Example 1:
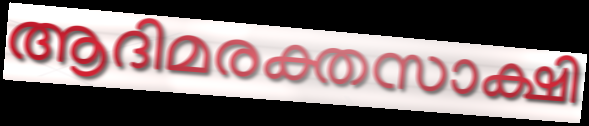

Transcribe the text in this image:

ആദിമരക്തസാക്ഷി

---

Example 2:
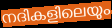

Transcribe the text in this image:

നദികളിലെയും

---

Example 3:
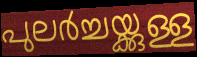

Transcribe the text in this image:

പുലർച്ചയ്ക്കുള്ള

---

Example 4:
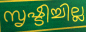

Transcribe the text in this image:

സൃഷ്ടിച്ചില്ല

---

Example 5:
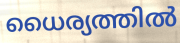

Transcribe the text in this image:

ധൈര്യത്തിൽ